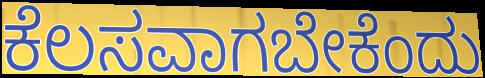
ಕೆಲಸವಾಗಬೇಕೆಂದು